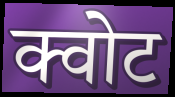
क्वोट